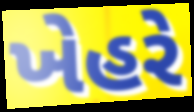
ખેહરે